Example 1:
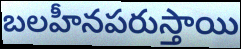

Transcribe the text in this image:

బలహీనపరుస్తాయి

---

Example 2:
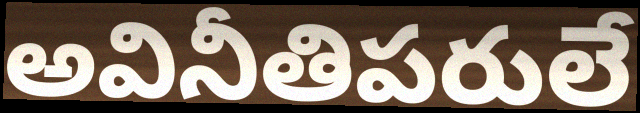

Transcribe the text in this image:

అవినీతిపరులే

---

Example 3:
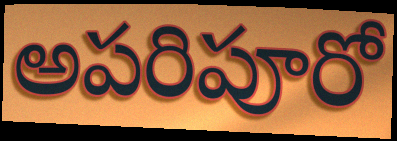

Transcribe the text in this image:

అపరిపూరో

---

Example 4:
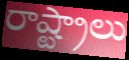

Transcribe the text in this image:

రాష్ట్రాలు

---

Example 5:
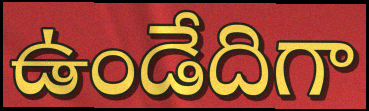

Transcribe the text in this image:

ఉండేదిగా